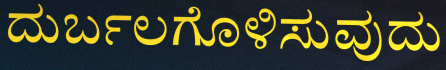
ದುರ್ಬಲಗೊಳಿಸುವುದು